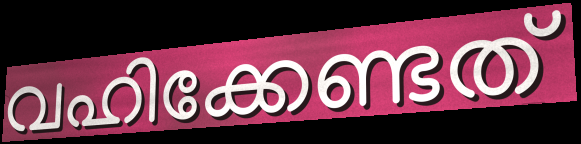
വഹിക്കേണ്ടത്